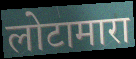
लोटामारा